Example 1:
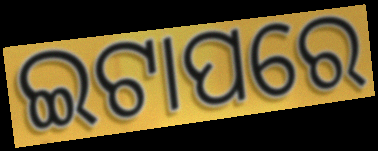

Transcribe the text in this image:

ଇଟାପରେ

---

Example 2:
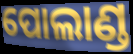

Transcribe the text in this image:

ପୋଲାଣ୍ଡ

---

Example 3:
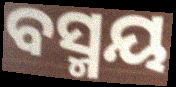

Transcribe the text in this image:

ବସ୍ମୟ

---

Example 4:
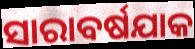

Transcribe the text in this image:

ସାରାବର୍ଷଯାକ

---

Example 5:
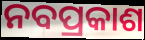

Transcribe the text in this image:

ନବପ୍ରକାଶ